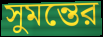
সুমন্তের